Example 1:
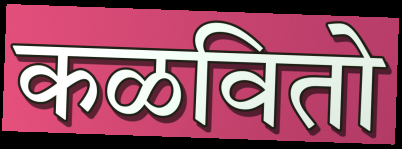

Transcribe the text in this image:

कळवितो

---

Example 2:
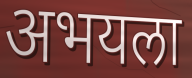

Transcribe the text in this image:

अभयला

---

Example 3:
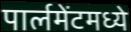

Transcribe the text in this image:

पार्लमेंटमध्ये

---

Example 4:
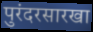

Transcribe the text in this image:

पुरंदरसारखा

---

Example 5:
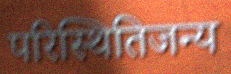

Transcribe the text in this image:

परिस्थितिजन्य